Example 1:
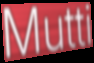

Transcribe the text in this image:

Mutti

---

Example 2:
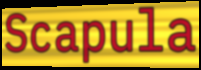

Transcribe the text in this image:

Scapula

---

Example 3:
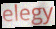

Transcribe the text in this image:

elegy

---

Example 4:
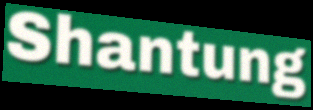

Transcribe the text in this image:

Shantung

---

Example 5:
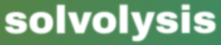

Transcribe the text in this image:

solvolysis